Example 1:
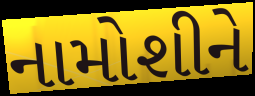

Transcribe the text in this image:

નામોશીને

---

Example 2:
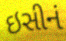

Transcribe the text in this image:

ઇસીનં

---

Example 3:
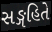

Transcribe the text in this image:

સઙ્ગહિતે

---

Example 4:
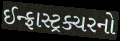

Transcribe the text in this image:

ઈન્ફ્રાસ્ટ્રક્ચરનો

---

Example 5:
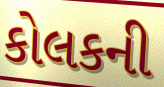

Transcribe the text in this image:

કોલકની